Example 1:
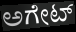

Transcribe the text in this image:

ಅಗೇಟ್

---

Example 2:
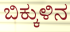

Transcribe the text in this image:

ಬಿಕ್ಕುಳಿನ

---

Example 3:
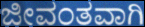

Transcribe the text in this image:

ಜೀವಂತವಾಗಿ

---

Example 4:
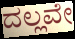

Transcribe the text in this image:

ದಲ್ಲವೇ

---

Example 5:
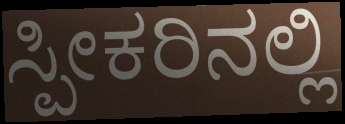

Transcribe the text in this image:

ಸ್ಪೀಕರಿನಲ್ಲಿ